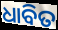
ଧାବିତ